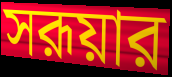
সরূয়ার